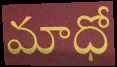
మాధో